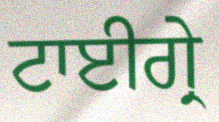
ਟਾਈਗ੍ਰੇ